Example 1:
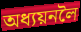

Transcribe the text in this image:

অধ্যয়নলৈ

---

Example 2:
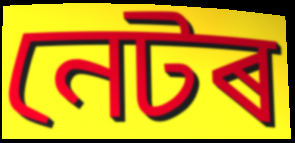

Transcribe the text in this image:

নেটৰ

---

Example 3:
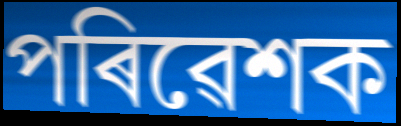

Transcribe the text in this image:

পৰিৱেশক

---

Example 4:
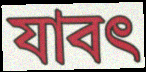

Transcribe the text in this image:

যাবৎ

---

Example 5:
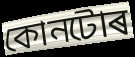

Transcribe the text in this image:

কোনটোৰ